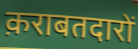
क़राबतदारों